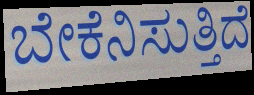
ಬೇಕೆನಿಸುತ್ತಿದೆ